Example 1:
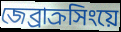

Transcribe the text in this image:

জেব্রাক্রসিংয়ে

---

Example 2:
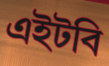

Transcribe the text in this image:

এইটবি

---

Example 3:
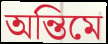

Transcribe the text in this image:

অন্তিমে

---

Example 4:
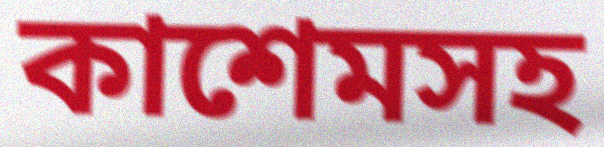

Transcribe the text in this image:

কাশেমসহ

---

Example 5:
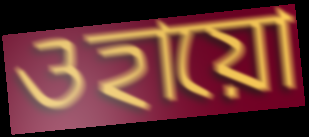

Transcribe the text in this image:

ওহায়ো